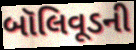
બૉલિવૂડની